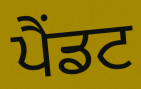
ਪੈਂਡਟ